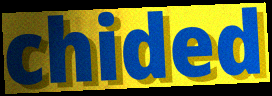
chided